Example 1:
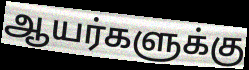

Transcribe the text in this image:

ஆயர்களுக்கு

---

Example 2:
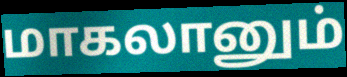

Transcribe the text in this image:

மாகலானும்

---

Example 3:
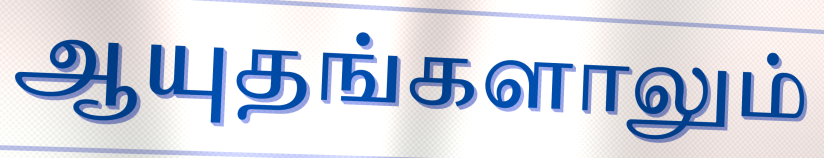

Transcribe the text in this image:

ஆயுதங்களாலும்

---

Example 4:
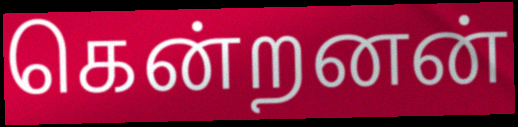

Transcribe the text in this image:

கென்றனன்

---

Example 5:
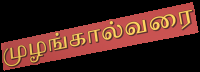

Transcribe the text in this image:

முழங்கால்வரை